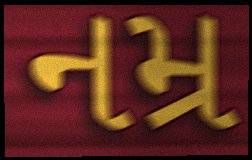
નમ્ર